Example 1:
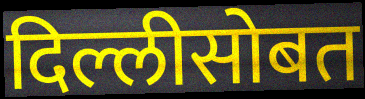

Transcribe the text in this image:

दिल्लीसोबत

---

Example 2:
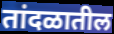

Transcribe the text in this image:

तांदळातील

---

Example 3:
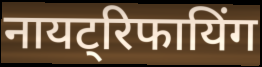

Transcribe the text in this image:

नायट्रिफायिंग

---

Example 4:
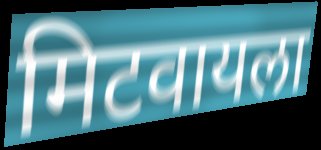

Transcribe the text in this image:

मिटवायला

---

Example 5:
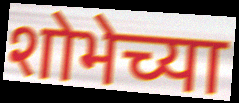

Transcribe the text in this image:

शोभेच्या